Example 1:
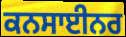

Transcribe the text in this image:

ਕਨਸਾਈਨਰ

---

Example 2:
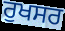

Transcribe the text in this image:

ਰੁਖਸਰ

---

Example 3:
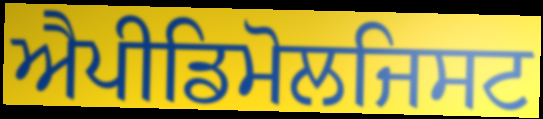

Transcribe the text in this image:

ਐਪੀਡਿਮੋਲਜਿਸਟ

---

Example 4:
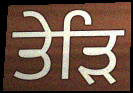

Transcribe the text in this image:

ਤੇੜਿ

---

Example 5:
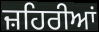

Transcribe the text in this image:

ਜ਼ਹਿਰੀਆਂ